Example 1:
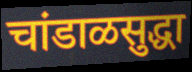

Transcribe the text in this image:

चांडाळसुद्धा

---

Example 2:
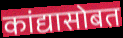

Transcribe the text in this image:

कांद्यासोबत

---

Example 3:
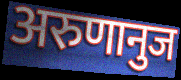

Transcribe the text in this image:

अरुणानुज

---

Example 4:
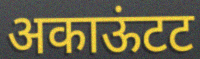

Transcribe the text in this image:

अकाऊंटट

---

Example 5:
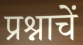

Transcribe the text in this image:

प्रश्नाचें